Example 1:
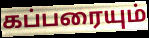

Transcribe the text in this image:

கப்பரையும்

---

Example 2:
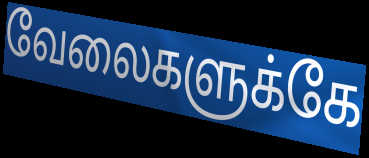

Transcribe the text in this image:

வேலைகளுக்கே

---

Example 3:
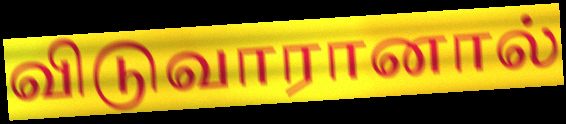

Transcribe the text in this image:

விடுவாரானால்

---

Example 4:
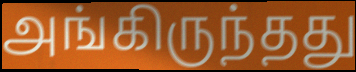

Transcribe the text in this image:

அங்கிருந்தது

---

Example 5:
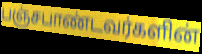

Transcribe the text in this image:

பஞ்சபாண்டவர்களின்